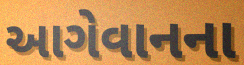
આગેવાનના